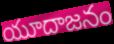
యూదాజనం